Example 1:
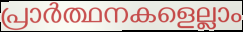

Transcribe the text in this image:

പ്രാർത്ഥനകളെല്ലാം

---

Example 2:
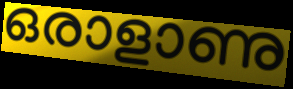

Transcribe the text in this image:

ഒരാളാണു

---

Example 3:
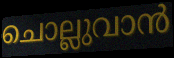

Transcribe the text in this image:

ചൊല്ലുവാൻ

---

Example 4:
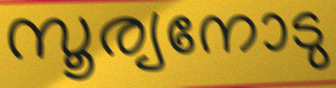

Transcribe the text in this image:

സൂര്യനോടു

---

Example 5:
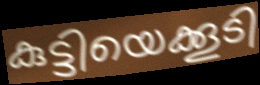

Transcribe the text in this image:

കുട്ടിയെക്കൂടി